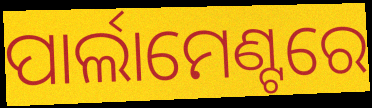
ପାର୍ଲାମେଣ୍ଟରେ